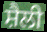
ਸ਼ੈਲੀ